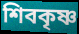
শিবকৃষ্ণ